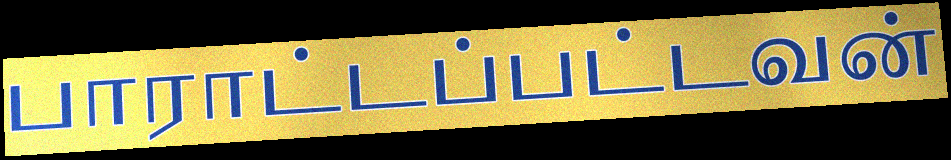
பாராட்டப்பட்டவன்